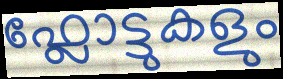
ഫ്ലോട്ടുകളും